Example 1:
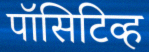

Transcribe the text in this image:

पॉसिटिव्ह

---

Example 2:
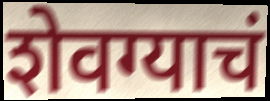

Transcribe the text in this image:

शेवग्याचं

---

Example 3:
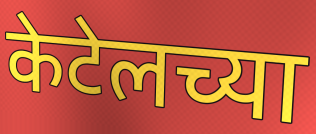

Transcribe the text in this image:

केटेलच्या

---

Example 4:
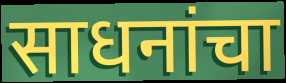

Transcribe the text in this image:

साधनांचा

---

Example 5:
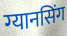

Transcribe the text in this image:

ग्यानसिंग